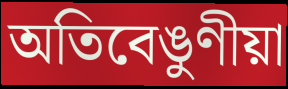
অতিবেঙুণীয়া